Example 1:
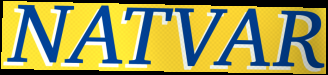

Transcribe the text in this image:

NATVAR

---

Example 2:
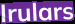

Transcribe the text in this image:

Irulars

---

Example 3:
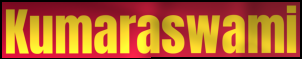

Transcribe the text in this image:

Kumaraswami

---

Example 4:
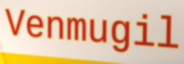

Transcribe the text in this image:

Venmugil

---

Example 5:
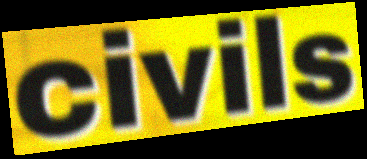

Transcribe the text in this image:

civils